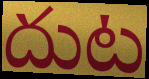
దుట